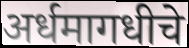
अर्धमागधीचे